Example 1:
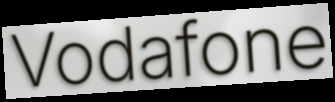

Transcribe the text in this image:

Vodafone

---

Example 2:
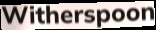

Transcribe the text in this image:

Witherspoon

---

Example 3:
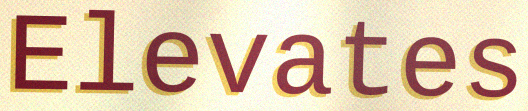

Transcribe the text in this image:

Elevates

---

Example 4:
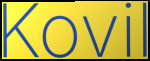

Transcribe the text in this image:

Kovil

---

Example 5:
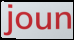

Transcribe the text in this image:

joun